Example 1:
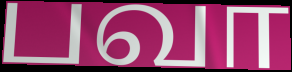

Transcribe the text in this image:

பவா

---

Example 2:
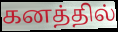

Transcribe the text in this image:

கனத்தில்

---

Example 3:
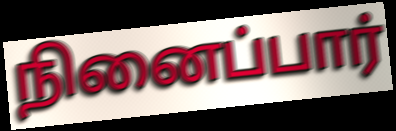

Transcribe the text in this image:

நினைப்பார்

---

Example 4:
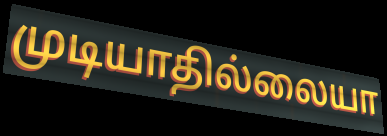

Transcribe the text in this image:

முடியாதில்லையா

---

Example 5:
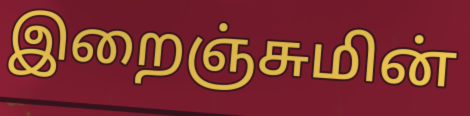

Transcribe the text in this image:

இறைஞ்சுமின்